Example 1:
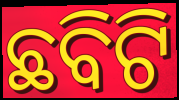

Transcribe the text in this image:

ଛବିଟି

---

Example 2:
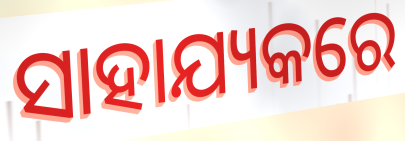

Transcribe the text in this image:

ସାହାଯ୍ୟକରେ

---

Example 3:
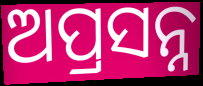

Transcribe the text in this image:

ଅପ୍ରସନ୍ନ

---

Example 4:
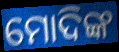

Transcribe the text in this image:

ମୋଦିଙ୍କ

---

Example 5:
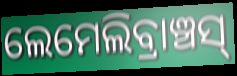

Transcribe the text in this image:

ଲେମେଲିବ୍ରାଞ୍ଚସ୍